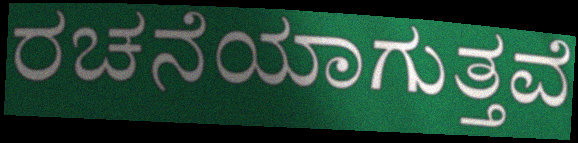
ರಚನೆಯಾಗುತ್ತವೆ